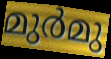
മുർമു